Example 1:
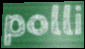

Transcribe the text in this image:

polli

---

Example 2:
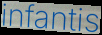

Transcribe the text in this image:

infantis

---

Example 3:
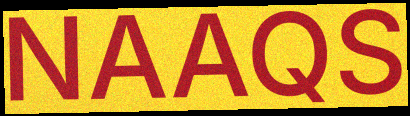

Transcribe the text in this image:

NAAQS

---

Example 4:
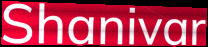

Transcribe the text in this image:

Shanivar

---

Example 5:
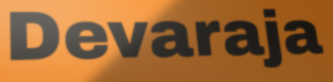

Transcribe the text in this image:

Devaraja